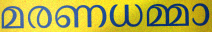
മരണധമ്മാ